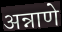
अन्नाणे